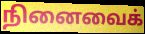
நினைவைக்